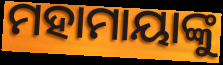
ମହାମାୟାଙ୍କୁ